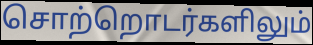
சொற்றொடர்களிலும்